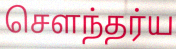
செளந்தர்ய